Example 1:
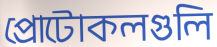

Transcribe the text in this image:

প্রোটোকলগুলি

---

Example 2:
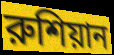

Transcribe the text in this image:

রুশিয়ান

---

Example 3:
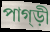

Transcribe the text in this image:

পাগ্ড়ী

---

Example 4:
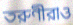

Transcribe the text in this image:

তরুণীরাও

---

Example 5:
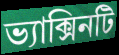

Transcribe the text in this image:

ভ্যাক্সিনটি